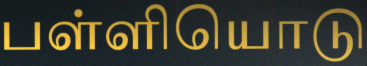
பள்ளியொடு